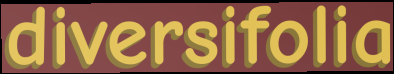
diversifolia